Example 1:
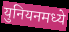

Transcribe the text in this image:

युनियनमध्ये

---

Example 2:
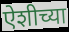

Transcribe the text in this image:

ऐशीच्या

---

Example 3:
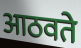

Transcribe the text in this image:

आठवते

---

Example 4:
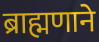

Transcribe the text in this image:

ब्राह्मणाने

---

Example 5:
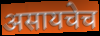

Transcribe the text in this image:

असायचेच